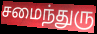
சமைந்துரு